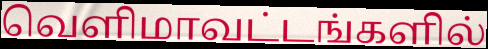
வெளிமாவட்டங்களில்